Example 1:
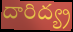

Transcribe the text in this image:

దారిద్య్ర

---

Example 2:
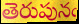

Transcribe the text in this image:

తెరుపునఁ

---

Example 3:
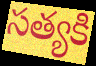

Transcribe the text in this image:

సత్యకి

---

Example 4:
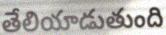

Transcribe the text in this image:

తేలియాడుతుంది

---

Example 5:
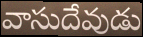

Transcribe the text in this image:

వాసుదేవుడు